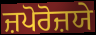
ਜ਼ਪੋਰੋਜ਼ਯੇ